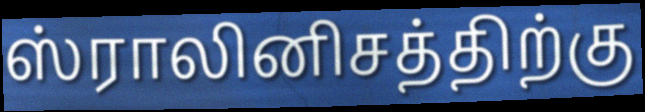
ஸ்ராலினிசத்திற்கு